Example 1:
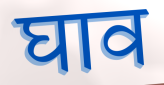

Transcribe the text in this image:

घाव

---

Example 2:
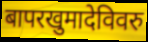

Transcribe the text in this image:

बापरखुमादेविवरु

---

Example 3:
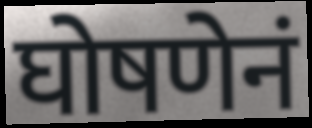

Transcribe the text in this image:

घोषणेनं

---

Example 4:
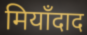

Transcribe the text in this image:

मियाँदाद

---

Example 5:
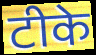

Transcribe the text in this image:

टीके